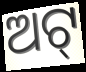
ଅଟ୍